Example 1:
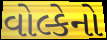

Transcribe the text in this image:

વોલ્કેનો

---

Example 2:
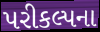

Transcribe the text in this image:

પરીકલ્પના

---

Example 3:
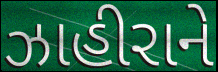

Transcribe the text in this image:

ઝાહીરાને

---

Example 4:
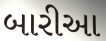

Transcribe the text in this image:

બારીઆ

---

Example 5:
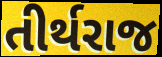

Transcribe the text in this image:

તીર્થરાજ